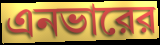
এনভারের